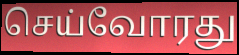
செய்வோரது